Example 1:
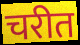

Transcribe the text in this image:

चरीत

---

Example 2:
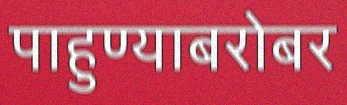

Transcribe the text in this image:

पाहुण्याबरोबर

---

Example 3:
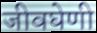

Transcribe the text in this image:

जीवघेणी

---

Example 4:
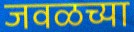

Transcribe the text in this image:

जवळच्या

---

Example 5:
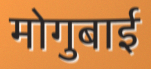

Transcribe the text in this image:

मोगुबाई